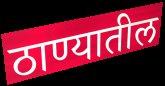
ठाण्यातील